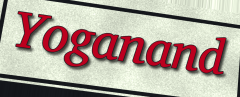
Yoganand